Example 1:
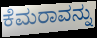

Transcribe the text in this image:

ಕೆಮರಾವನ್ನು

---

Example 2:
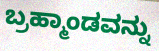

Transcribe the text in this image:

ಬ್ರಹ್ಮಾಂಡವನ್ನು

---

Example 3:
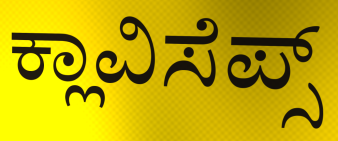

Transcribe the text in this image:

ಕ್ಲಾವಿಸೆಪ್ಸ್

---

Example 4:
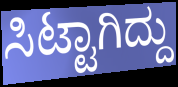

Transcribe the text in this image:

ಸಿಟ್ಟಾಗಿದ್ದು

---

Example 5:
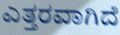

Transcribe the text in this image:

ಎತ್ತರವಾಗಿದೆ